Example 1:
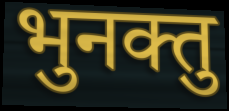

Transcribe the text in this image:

भुनक्तु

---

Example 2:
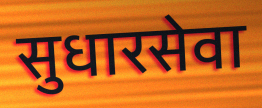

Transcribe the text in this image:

सुधारसेवा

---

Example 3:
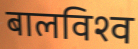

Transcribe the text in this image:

बालविश्व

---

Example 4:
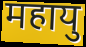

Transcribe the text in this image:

महायु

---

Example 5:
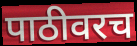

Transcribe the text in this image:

पाठीवरच